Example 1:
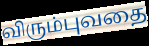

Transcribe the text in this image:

விரும்புவதை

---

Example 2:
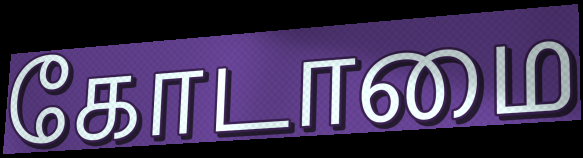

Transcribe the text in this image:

கோடாமை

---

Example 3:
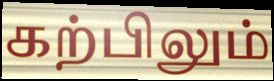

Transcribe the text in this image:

கற்பிலும்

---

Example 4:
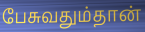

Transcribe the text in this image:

பேசுவதும்தான்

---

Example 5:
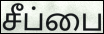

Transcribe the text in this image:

சீப்பை